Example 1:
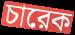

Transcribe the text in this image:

চারেক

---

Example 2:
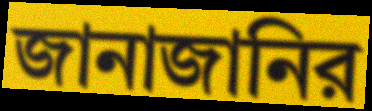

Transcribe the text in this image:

জানাজানির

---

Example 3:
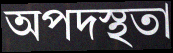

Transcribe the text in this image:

অপদস্থতা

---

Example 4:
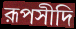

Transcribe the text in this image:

রূপসীদি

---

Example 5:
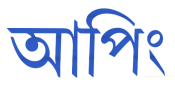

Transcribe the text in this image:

আপিং